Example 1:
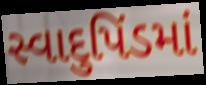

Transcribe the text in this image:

સ્વાદુપિંડમાં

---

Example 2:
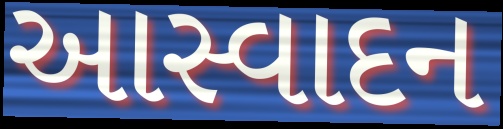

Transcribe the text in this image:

આસ્વાદન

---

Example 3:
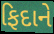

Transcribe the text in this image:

ફિદાને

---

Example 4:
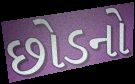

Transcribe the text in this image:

છોડનો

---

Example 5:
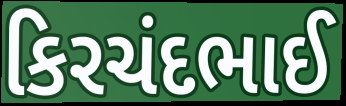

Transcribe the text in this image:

કિરચંદભાઈ